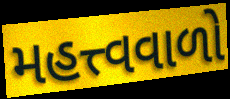
મહત્ત્વવાળો